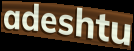
adeshtu